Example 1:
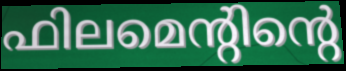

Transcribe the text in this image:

ഫിലമെന്റിന്റെ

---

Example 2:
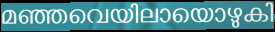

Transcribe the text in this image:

മഞ്ഞവെയിലായൊഴുകി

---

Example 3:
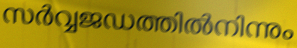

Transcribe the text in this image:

സർവ്വജഡത്തിൽനിന്നും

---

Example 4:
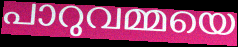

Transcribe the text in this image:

പാറുവമ്മയെ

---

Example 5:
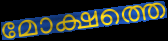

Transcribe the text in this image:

മോക്ഷത്തെ